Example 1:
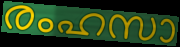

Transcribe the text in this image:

രംഹസാ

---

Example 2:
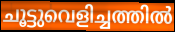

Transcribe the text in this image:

ചൂട്ടുവെളിച്ചത്തിൽ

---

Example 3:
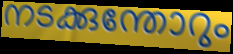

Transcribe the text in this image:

നടക്കുന്തോറും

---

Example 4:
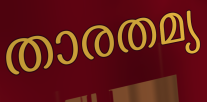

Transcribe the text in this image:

താരതമ്യ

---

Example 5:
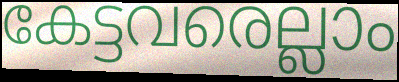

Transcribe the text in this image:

കേട്ടവരെല്ലാം